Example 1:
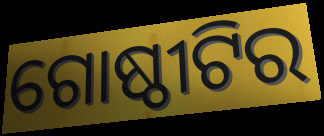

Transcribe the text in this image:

ଗୋଷ୍ଠୀଟିର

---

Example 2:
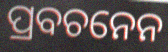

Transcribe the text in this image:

ପ୍ରବଚନେନ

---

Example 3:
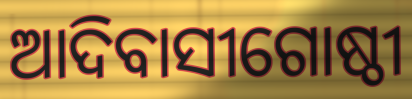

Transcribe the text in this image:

ଆଦିବାସୀଗୋଷ୍ଠୀ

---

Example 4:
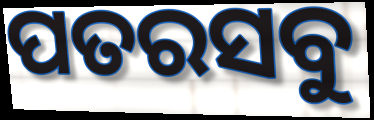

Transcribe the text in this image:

ପତରସବୁ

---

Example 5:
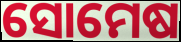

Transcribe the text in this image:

ସୋମେଷ